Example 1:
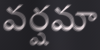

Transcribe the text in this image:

వర్షమా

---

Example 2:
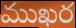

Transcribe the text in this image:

ముఖర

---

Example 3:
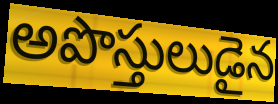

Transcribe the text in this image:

అపొస్తులుడైన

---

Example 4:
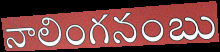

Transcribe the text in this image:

నాలింగనంబు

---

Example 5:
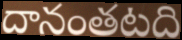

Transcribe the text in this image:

దానంతటది